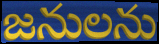
జనులను